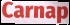
Carnap